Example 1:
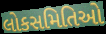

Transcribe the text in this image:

લોકસમિતિઓ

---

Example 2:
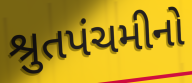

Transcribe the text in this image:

શ્રુતપંચમીનો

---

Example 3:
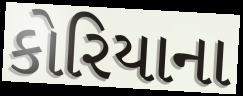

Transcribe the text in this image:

કોરિયાના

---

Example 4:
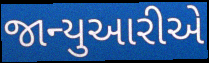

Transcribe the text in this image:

જાન્યુઆરીએ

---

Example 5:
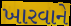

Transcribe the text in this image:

ખારવાને